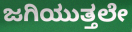
ಜಗಿಯುತ್ತಲೇ